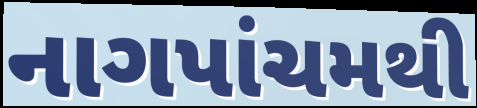
નાગપાંચમથી